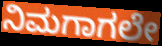
ನಿಮಗಾಗಲೇ